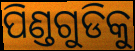
ପିଣ୍ଡଗୁଡିକୁ